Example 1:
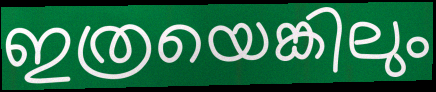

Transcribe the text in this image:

ഇത്രയെങ്കിലും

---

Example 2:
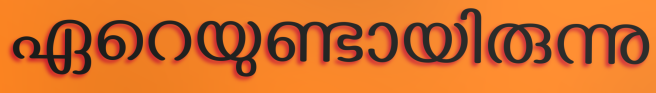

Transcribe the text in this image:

ഏറെയുണ്ടായിരുന്നു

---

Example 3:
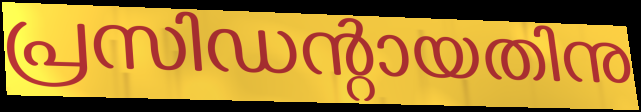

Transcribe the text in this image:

പ്രസിഡന്റായതിനു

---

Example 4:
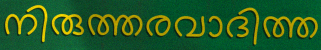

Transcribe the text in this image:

നിരുത്തരവാദിത്ത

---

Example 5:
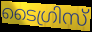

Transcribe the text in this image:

ടൈഗ്രിസ്